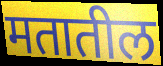
मतातील